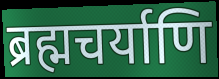
ब्रह्मचर्याणि